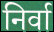
निर्वा